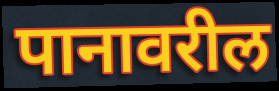
पानावरील